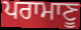
ਪਰਾਮਾਣੂ